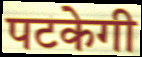
पटकेगी